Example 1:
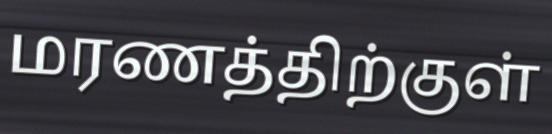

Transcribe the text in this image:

மரணத்திற்குள்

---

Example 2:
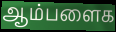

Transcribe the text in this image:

ஆம்பளைக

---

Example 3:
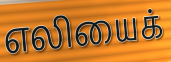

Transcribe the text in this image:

எலியைக்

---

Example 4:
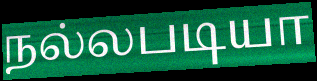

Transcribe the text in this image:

நல்லபடியா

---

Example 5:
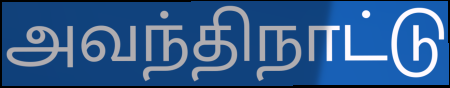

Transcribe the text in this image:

அவந்திநாட்டு